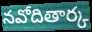
నవోదితార్క